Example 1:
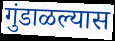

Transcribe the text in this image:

गुंडाळल्यास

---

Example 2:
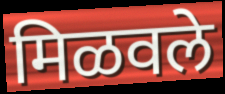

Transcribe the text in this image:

मिळवले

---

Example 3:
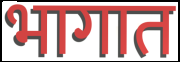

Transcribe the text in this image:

भागात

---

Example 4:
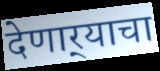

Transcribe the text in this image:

देणार्याचा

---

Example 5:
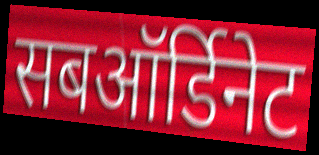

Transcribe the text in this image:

सबऑर्डिनेट